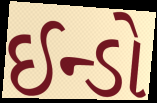
ઈન્ડો